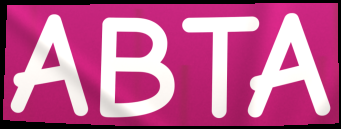
ABTA